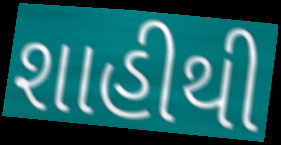
શાહીથી